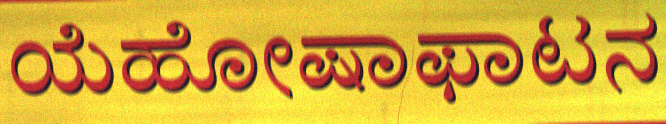
ಯೆಹೋಷಾಫಾಟನ